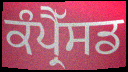
ਕੰਪ੍ਰੈੱਸਡ